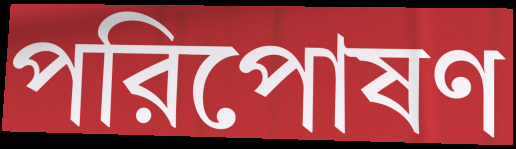
পরিপোষণ